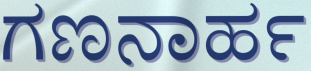
ಗಣನಾರ್ಹ